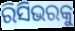
ରିସିଭରକୁ